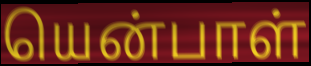
யென்பாள்